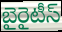
బైరైటీస్